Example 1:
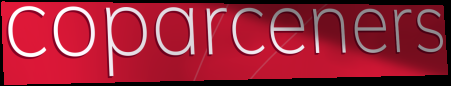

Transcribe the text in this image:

coparceners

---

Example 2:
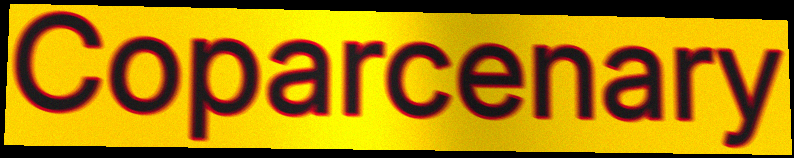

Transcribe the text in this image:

Coparcenary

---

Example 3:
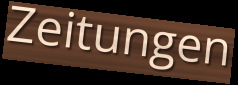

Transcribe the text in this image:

Zeitungen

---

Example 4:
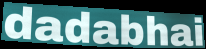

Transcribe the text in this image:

dadabhai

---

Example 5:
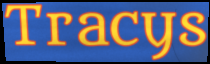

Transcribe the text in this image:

Tracys